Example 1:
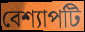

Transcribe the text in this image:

বেশ্যাপটি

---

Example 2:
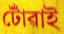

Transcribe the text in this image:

টোঁৱাই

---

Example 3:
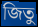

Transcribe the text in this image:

জিতু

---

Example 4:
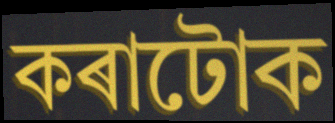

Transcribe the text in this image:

কৰাটোক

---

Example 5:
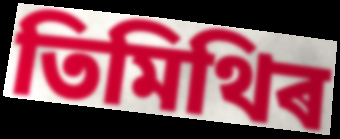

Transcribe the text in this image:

তিমিথিৰ